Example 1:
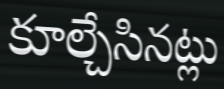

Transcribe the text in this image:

కూల్చేసినట్లు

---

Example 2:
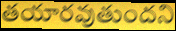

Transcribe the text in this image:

తయారవుతుందని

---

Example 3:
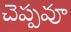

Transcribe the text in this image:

చెప్పవూ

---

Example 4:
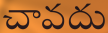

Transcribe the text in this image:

చావదు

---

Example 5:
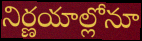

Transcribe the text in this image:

నిర్ణయాల్లోనూ